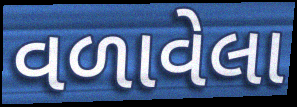
વળાવેલા